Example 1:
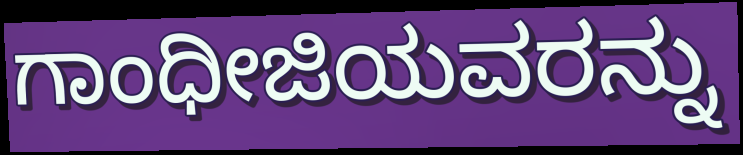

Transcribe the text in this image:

ಗಾಂಧೀಜಿಯವರನ್ನು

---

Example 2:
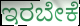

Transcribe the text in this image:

ಇರಬೇಕೆ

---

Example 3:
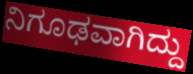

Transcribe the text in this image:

ನಿಗೂಢವಾಗಿದ್ದು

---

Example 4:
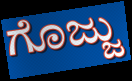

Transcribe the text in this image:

ಗೊಜ್ಜು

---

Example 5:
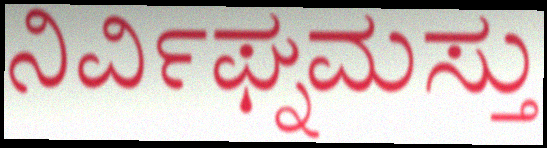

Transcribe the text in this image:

ನಿರ್ವಿಘ್ನಮಸ್ತು